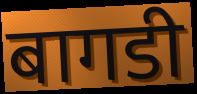
बागडी